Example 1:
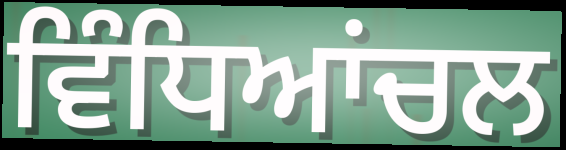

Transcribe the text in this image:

ਵਿੰਧਿਆਂਚਲ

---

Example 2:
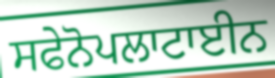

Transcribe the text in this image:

ਸਫੇਨੋਪਲਾਟਾਈਨ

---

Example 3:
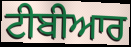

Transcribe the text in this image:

ਟੀਬੀਆਰ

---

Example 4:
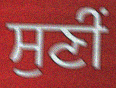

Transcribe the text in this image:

ਸੁਣੀਂ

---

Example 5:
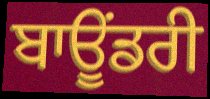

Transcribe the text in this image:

ਬਾਊਂਡਰੀ